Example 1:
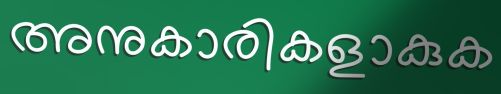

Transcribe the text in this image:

അനുകാരികളാകുക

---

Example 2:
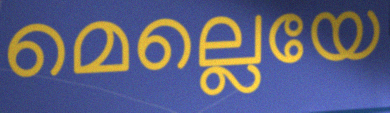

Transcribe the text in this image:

മെല്ലെയേ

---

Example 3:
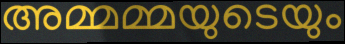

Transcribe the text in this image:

അമ്മമ്മയുടെയും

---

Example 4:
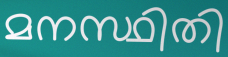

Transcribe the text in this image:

മനസ്ഥിതി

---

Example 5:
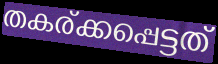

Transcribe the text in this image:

തകര്ക്കപ്പെട്ടത്